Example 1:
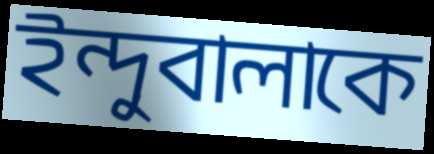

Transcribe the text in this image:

ইন্দুবালাকে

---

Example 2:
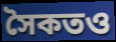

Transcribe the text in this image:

সৈকতও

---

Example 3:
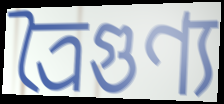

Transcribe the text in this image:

ত্রৈগুণ্য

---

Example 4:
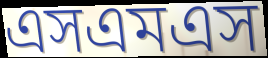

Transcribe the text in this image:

এসএমএস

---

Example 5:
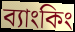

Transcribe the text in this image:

ব্যাংকিং